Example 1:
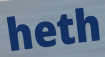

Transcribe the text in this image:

heth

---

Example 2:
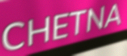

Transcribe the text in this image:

CHETNA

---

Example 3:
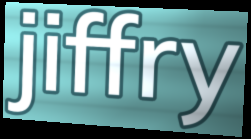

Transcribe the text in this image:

jiffry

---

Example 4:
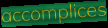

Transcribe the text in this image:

accomplices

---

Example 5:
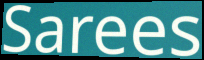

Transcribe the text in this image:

Sarees